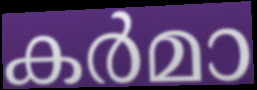
കർമാ